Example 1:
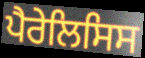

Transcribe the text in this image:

ਪੈਰੇਲਿਸਿਸ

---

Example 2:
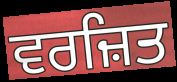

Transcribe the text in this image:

ਵਰਜ਼ਿਤ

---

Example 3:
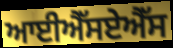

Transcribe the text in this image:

ਆਈਐੱਸਏਐੱਸ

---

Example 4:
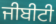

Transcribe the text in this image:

ਜੀਬੀਟੀ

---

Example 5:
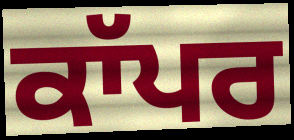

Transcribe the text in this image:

ਕਾੱਪਰ